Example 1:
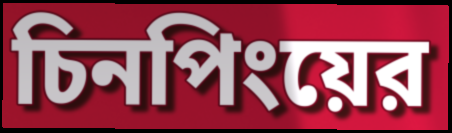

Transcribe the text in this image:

চিনপিংয়ের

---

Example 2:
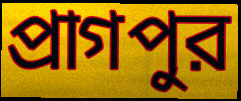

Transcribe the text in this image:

প্রাগপুর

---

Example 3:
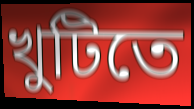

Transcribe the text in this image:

খুটিতে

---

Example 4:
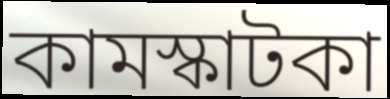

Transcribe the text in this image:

কামস্কাটকা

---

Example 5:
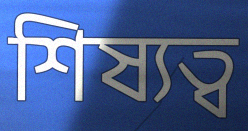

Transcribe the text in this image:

শিষ্যত্ব